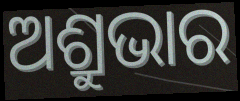
ଅଶ୍ରୁଭାର